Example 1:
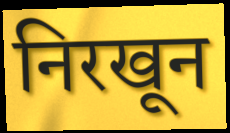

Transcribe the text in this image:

निरखून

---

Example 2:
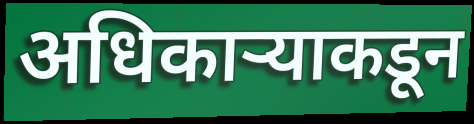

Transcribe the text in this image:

अधिकाऱ्याकडून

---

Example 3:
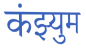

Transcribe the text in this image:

कंझ्युम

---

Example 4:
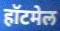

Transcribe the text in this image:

हॉटमेल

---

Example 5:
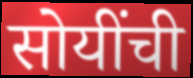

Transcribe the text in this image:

सोयींची